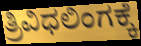
ತ್ರಿವಿಧಲಿಂಗಕ್ಕೆ